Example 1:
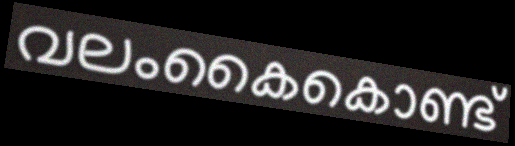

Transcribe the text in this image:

വലംകൈകൊണ്ട്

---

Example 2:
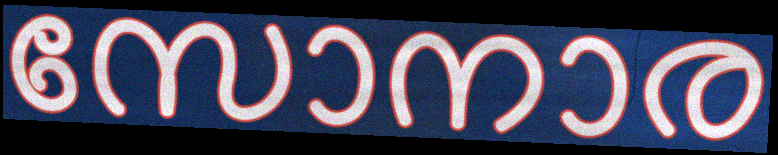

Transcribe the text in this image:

സോനാര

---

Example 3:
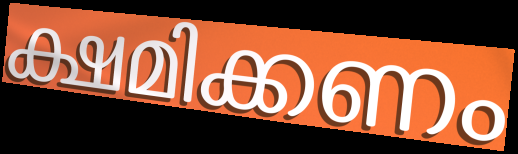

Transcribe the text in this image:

ക്ഷമിക്കണം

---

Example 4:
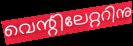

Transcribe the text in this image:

വെന്റിലേറ്ററിനു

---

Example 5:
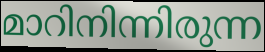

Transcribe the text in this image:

മാറിനിന്നിരുന്ന